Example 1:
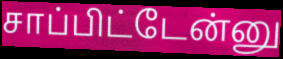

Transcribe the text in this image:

சாப்பிட்டேன்னு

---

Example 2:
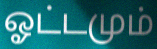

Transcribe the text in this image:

ஓட்டமும்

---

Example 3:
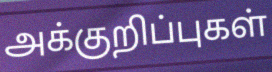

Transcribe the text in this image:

அக்குறிப்புகள்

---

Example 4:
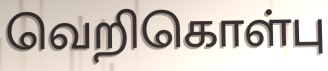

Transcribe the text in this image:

வெறிகொள்பு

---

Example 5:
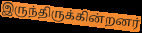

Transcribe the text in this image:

இருந்திருக்கின்றனர்